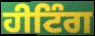
ਹੀਟਿੰਗ